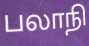
பலாநி